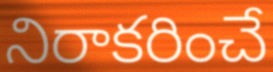
నిరాకరించే